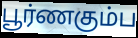
பூர்ணகும்ப